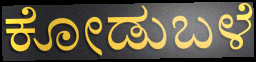
ಕೋಡುಬಳೆ